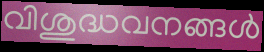
വിശുദ്ധവനങ്ങൾ